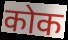
कोक